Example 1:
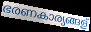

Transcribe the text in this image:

ഭരണകാര്യങ്ങള്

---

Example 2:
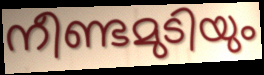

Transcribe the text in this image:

നീണ്ടമുടിയും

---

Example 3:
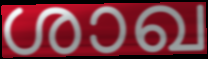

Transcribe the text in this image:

ശാഖ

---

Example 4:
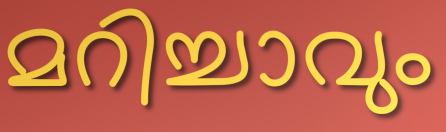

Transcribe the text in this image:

മറിച്ചാവും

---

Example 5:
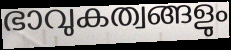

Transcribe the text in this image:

ഭാവുകത്വങ്ങളും